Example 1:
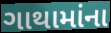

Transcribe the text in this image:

ગાથામાંના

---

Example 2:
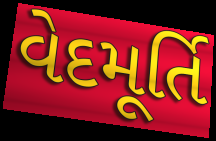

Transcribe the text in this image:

વેદમૂર્તિ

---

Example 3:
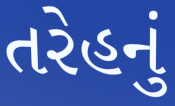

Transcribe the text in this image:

તરેહનું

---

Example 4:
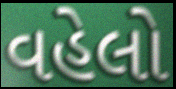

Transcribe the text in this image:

વહેલો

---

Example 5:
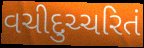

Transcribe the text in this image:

વચીદુચ્ચરિતં